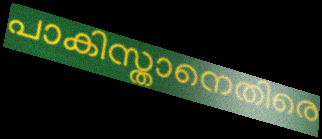
പാകിസ്താനെതിരെ